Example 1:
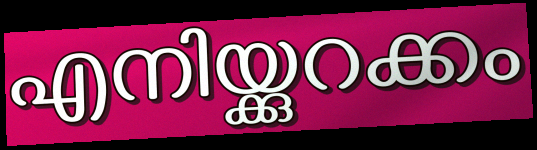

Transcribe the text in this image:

എനിയ്ക്കുറക്കം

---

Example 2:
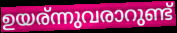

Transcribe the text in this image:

ഉയര്ന്നുവരാറുണ്ട്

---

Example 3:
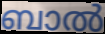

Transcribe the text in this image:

ബാൽ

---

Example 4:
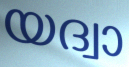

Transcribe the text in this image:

യദ്വാ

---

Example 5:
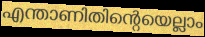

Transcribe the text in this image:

എന്താണിതിന്റെയെല്ലാം